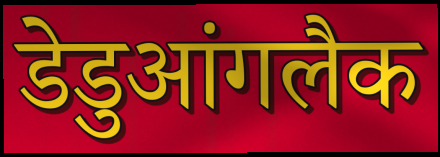
डेडुआंगलैक